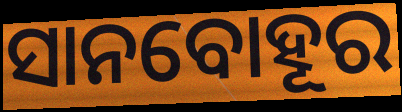
ସାନବୋହୂର